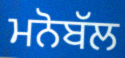
ਮਨੋਬੱਲ